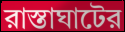
রাস্তাঘাটের